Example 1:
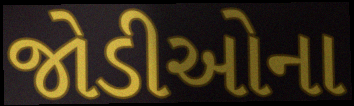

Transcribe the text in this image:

જોડીઓના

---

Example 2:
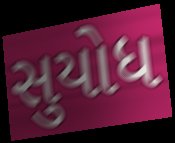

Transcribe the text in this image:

સુયોધ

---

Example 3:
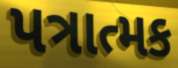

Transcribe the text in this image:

પત્રાત્મક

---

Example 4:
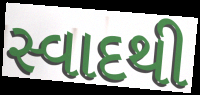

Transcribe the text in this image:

સ્વાદથી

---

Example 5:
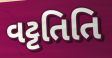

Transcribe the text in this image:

વટ્ટતિતિ